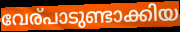
വേര്പാടുണ്ടാക്കിയ